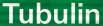
Tubulin